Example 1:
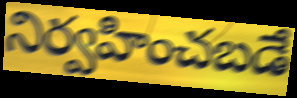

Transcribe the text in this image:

నిర్వహించబడే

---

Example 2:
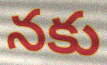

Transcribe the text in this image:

నకు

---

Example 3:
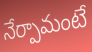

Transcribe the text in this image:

నేర్పామంటే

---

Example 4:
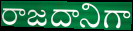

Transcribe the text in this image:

రాజదానిగా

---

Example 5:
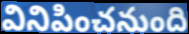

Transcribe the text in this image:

వినిపించనుంది